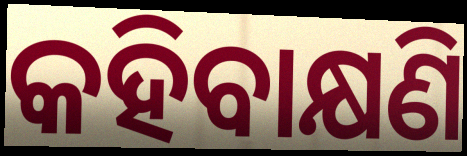
କହିବାକ୍ଷଣି